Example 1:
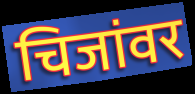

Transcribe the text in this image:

चिजांवर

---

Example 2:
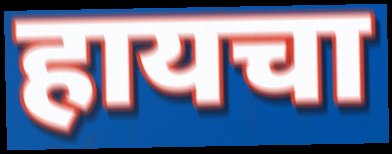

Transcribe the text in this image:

हायचा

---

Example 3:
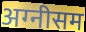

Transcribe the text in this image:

अग्नीसम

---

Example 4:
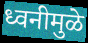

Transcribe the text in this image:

ध्वनीमुळे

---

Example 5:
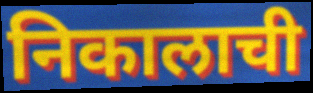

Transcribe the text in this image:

निकालाची